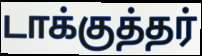
டாக்குத்தர்